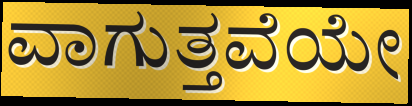
ವಾಗುತ್ತವೆಯೇ